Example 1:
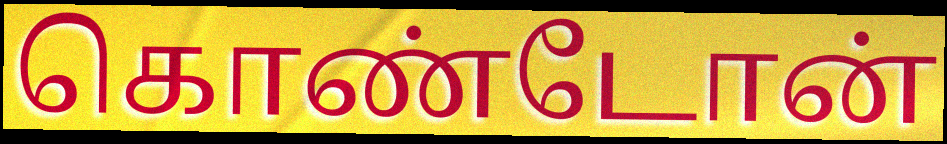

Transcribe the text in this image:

கொண்டோன்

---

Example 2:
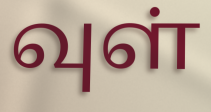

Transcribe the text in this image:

வுள்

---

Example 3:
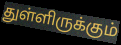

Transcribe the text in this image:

துள்ளிருக்கும்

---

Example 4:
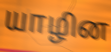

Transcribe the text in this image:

யாழின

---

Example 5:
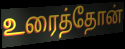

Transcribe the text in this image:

உரைத்தோன்